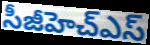
సీజీహెచ్ఎస్